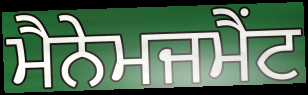
ਮੈਨੇਮਜਮੈਂਟ